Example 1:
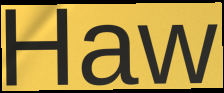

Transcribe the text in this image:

Haw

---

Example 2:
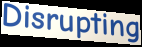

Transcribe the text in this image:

Disrupting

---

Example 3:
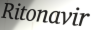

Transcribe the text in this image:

Ritonavir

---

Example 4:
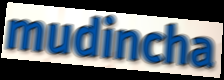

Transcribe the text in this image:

mudincha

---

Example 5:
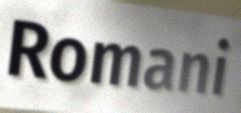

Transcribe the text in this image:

Romani